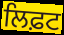
ਲਿਫ਼ਟ